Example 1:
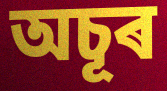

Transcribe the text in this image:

অচূৰ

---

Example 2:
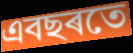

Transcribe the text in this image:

এবছৰতে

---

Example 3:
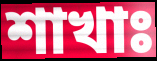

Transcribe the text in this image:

শাখাঃ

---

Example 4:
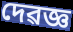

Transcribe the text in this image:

দেৱজ্ঞ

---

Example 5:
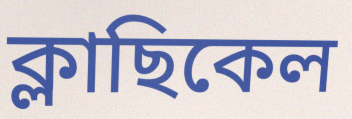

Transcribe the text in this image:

ক্লাছিকেল